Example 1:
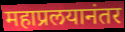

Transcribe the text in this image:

महाप्रलयानंतर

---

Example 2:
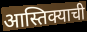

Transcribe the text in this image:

आस्तिक्याची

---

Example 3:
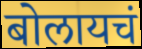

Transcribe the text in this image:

बोलायचं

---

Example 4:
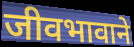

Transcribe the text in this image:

जीवभावाने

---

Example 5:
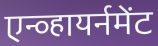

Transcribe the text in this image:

एन्व्हायर्नमेंट